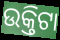
ଉକ୍ତିଟା